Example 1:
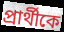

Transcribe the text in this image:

প্রার্থীকে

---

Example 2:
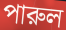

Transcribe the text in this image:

পারুল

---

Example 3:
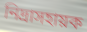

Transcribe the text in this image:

নিদ্রাসহায়ক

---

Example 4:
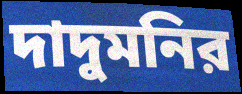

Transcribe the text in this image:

দাদুমনির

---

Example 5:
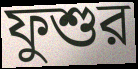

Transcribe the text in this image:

ফুশুর